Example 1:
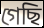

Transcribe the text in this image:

গেছি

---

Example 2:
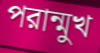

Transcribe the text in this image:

পরান্মুখ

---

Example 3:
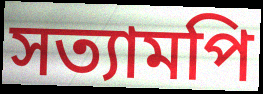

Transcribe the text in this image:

সত্যামপি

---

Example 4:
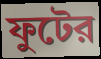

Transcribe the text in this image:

ফুটের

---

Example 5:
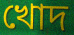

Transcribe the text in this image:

খোদ